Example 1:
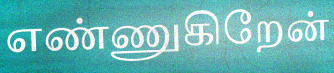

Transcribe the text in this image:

எண்ணுகிறேன்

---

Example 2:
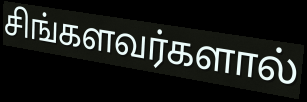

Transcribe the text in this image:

சிங்களவர்களால்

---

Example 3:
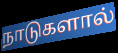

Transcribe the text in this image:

நாடுகளால்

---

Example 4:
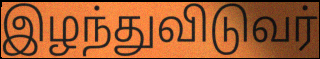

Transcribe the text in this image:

இழந்துவிடுவர்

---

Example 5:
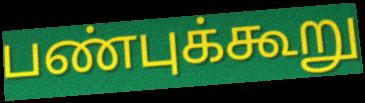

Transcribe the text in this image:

பண்புக்கூறு